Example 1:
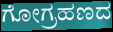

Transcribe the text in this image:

ಗೋಗ್ರಹಣದ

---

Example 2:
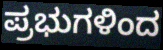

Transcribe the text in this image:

ಪ್ರಭುಗಳಿಂದ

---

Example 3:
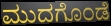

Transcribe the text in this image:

ಮುದಗೊಂಡೆ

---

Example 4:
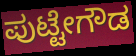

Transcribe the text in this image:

ಪುಟ್ಟೇಗೌಡ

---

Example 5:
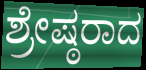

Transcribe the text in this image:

ಶ್ರೇಷ್ಠರಾದ